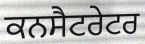
ਕਨਸੈਟਰੇਟਰ